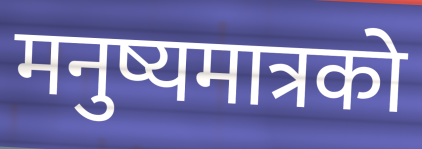
मनुष्यमात्रको